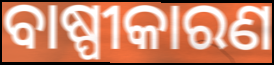
ବାଷ୍ପୀକାରଣ